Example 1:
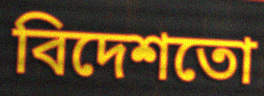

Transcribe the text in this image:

বিদেশতো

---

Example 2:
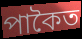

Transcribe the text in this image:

পাকৈত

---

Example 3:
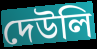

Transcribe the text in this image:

দেউলি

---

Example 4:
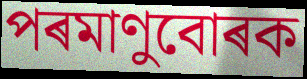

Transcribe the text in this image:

পৰমাণুবোৰক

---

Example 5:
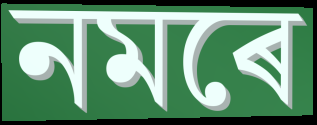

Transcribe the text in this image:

নমৰে